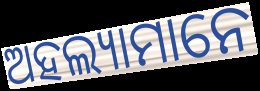
ଅହଲ୍ୟାମାନେ